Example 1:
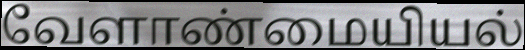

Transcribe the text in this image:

வேளாண்மையியல்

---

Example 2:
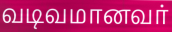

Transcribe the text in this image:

வடிவமானவர்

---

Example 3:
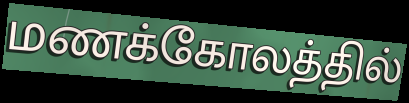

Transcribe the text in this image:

மணக்கோலத்தில்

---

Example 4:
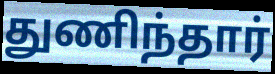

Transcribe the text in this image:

துணிந்தார்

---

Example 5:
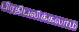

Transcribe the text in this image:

பிரதிபலிக்கலாம்